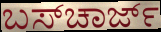
ಬಸ್‌ಚಾರ್ಜ್